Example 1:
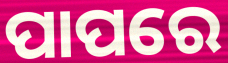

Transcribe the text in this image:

ପାପରେ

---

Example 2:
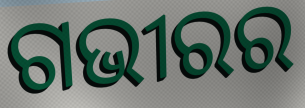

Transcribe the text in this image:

ଗଭୀରର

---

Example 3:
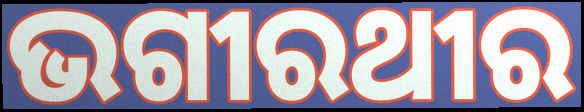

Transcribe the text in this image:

ଭଗୀରଥୀର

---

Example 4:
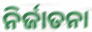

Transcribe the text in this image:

ନିର୍ଜାତନା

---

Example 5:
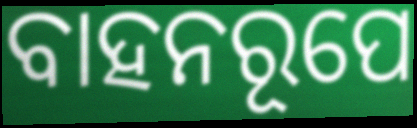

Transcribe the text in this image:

ବାହନରୂପେ